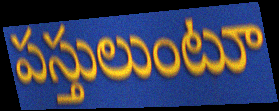
పస్తులుంటూ